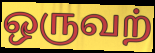
ஒருவற்